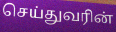
செய்துவரின்